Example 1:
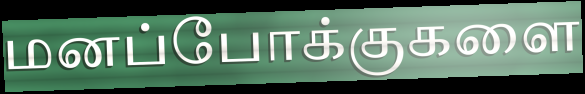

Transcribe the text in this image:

மனப்போக்குகளை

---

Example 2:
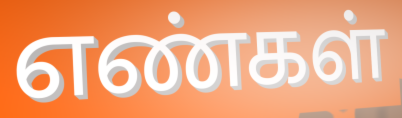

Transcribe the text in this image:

எண்கள்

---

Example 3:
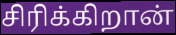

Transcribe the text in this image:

சிரிக்கிறான்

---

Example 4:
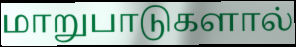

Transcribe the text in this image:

மாறுபாடுகளால்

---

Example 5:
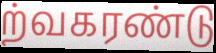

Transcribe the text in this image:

ற்வகரண்டு